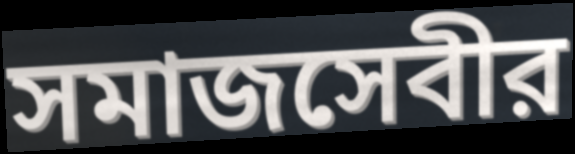
সমাজসেবীর